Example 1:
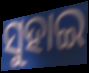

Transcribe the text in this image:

ସୁହାଇ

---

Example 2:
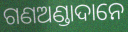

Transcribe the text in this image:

ଗଣଅଣ୍ଡାଦାନେ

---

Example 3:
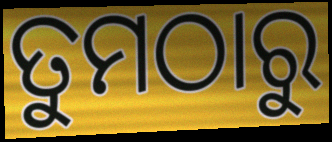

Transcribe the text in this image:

ତୁମଠାରୁ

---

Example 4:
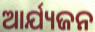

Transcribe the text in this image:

ଆର୍ଯ୍ୟଜନ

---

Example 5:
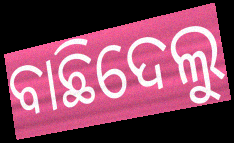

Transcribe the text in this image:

ବାଛିଦେଲୁ